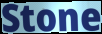
Stone